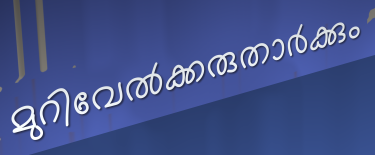
മുറിവേൽക്കരുതാർക്കും